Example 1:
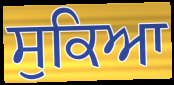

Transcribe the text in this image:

ਸੁਕਿਆ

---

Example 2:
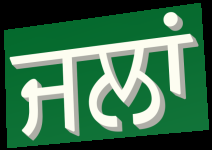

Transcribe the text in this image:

ਜਲਾਂ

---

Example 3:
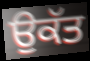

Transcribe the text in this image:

ਉਕੱਤ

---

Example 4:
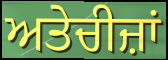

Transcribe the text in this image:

ਅਤੇਚੀਜ਼ਾਂ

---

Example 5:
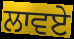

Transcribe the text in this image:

ਲਾਵਏ